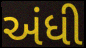
અંધી